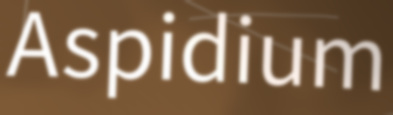
Aspidium